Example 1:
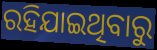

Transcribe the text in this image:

ରହିଯାଇଥିବାରୁ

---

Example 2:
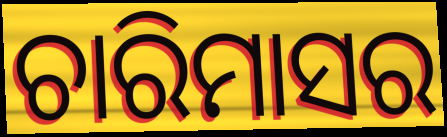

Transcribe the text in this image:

ଚାରିମାସର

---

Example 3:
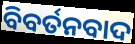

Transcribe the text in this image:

ବିବର୍ତନବାଦ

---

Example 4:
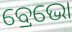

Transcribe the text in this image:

ବ୍ରେଭୋ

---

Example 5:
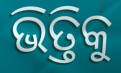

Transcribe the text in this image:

ଭିତ୍ତିକୁ